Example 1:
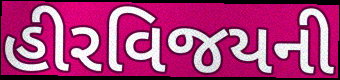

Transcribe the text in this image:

હીરવિજયની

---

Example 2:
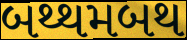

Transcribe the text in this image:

બથ્થમબથ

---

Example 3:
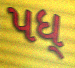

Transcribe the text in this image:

પધ્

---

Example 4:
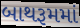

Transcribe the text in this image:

બાથરૂમમાં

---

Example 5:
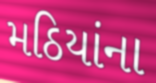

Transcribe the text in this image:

મઠિયાંના